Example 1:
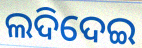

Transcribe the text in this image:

ଲଦିଦେଇ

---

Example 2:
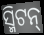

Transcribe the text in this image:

ସ୍ମିଟନ୍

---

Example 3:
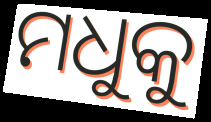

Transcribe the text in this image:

ମଧୁକୁ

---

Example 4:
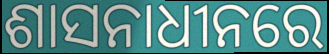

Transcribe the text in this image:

ଶାସନାଧୀନରେ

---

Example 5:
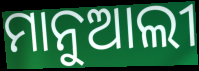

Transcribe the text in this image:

ମାନୁଆଲୀ